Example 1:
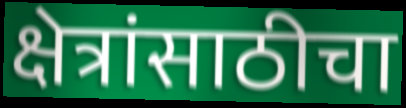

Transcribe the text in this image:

क्षेत्रांसाठीचा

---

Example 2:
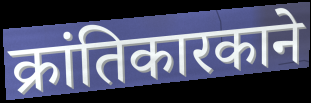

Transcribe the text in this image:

क्रांतिकारकाने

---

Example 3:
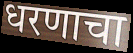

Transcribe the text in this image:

धरणाचा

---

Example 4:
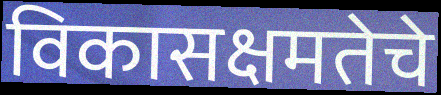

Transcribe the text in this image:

विकासक्षमतेचे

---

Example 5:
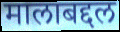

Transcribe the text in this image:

मालाबद्दल